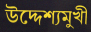
উদ্দেশ্যমুখী